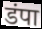
डंपा